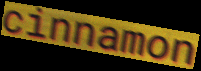
cinnamon